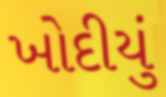
ખોદીયું